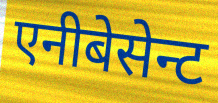
एनीबेसेन्ट